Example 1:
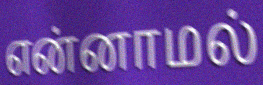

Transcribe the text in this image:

என்னாமல்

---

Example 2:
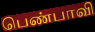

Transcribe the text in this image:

பெண்பாவி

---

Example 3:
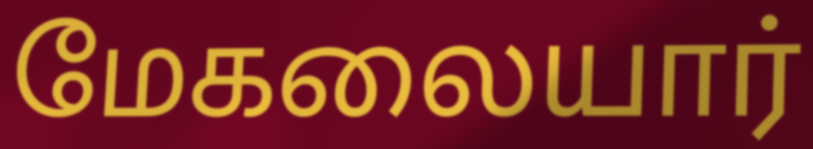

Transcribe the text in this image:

மேகலையார்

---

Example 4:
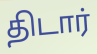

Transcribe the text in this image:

திடார்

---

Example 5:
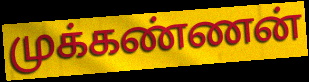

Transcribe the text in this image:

முக்கண்ணன்